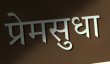
प्रेमसुधा